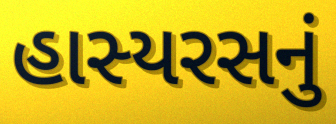
હાસ્યરસનું